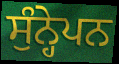
ਸੁੰਨ੍ਹੇਪਨ